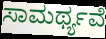
ಸಾಮರ್ಥ್ಯವೆ